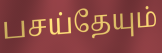
பசய்தேயும்